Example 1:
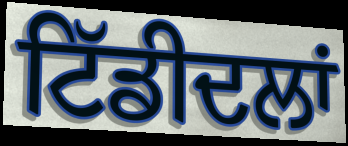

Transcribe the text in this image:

ਟਿੱਡੀਦਲਾਂ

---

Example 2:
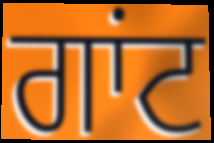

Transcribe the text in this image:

ਗਾਂਟ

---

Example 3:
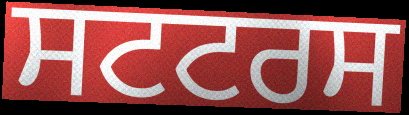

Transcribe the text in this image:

ਸਟਟਰਸ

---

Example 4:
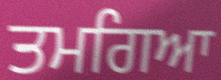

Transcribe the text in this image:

ਤਮਗਿਆ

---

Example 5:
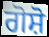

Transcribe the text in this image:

ਗੋਸ਼ੋ